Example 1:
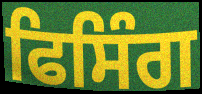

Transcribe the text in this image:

ਫਿਸਿੰਗ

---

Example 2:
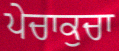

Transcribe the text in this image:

ਪੇਚਾਕੁਚਾ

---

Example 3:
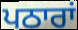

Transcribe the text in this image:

ਪਠਾਰਾਂ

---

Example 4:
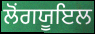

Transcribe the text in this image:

ਲੋਂਗਯੂਇਲ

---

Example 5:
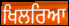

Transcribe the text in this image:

ਖਿਲਰਿਆ